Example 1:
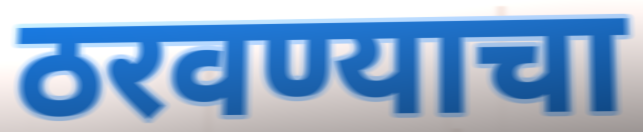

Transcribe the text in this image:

ठरवण्याचा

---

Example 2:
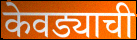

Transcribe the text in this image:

केवड्याची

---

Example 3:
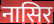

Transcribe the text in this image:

नासिर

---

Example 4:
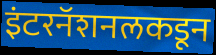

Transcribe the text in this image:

इंटरनॅशनलकडून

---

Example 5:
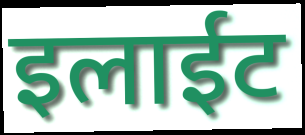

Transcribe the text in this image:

इलाईट